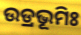
ଉଡ୍ରଭୂମିଃ